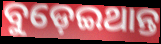
ବୁଡ଼େଇଥାନ୍ତ